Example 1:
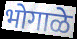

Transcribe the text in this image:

भोगाळे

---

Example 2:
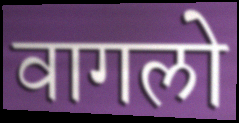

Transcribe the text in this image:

वागलो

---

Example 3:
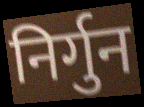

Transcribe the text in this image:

निर्गुन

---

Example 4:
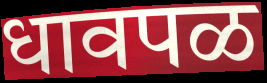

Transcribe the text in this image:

धावपळ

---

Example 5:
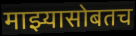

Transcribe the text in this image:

माझ्यासोबतच